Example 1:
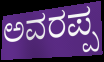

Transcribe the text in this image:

ಅವರಪ್ಪ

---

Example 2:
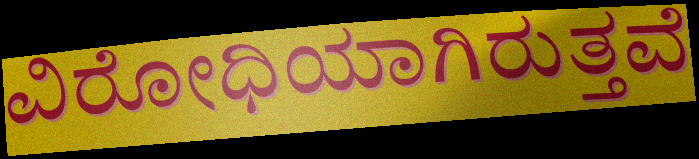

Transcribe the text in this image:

ವಿರೋಧಿಯಾಗಿರುತ್ತವೆ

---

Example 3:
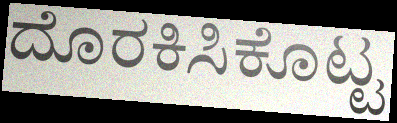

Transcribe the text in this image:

ದೊರಕಿಸಿಕೊಟ್ಟ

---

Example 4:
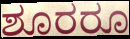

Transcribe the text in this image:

ಶೂರರೂ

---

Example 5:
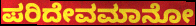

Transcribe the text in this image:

ಪರಿದೇವಮಾನೋ